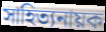
সাহিত্যনায়ক